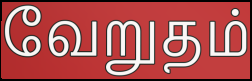
வேறுதம்